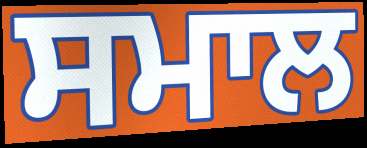
ਸਮਾਲ